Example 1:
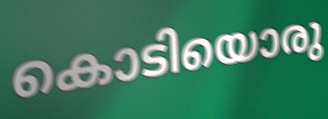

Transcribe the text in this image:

കൊടിയൊരു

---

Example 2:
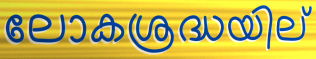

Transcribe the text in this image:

ലോകശ്രദ്ധയില്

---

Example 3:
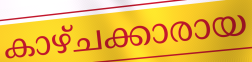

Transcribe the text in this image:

കാഴ്ചക്കാരായ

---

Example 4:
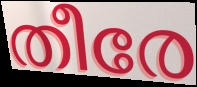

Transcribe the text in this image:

തീരേ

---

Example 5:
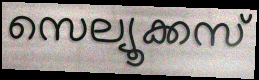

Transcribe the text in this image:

സെല്യൂക്കസ്